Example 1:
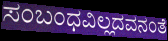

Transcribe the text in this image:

ಸಂಬಂಧವಿಲ್ಲದವನಂತೆ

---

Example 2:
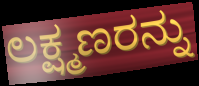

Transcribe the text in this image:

ಲಕ್ಷ್ಮಣರನ್ನು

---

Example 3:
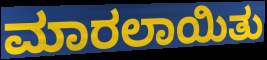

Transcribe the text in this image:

ಮಾರಲಾಯಿತು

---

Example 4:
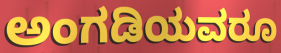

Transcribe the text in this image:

ಅಂಗಡಿಯವರೂ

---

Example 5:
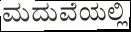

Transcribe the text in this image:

ಮದುವೆಯಲ್ಲಿ